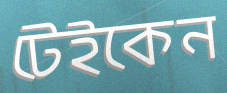
টেইকেন